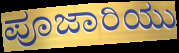
ಪೂಜಾರಿಯು